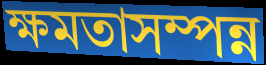
ক্ষমতাসম্পন্ন